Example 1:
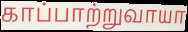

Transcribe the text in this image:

காப்பாற்றுவாயா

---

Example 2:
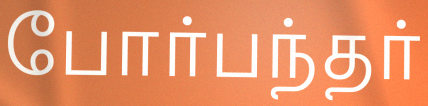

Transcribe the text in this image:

போர்பந்தர்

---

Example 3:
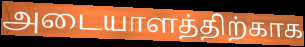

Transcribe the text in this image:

அடையாளத்திற்காக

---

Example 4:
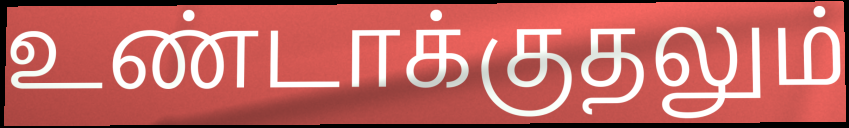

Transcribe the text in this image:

உண்டாக்குதலும்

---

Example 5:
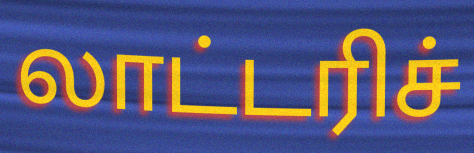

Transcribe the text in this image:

லாட்டரிச்